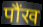
पौंख